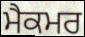
ਮੈਕਮਰ